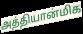
அத்தியான்மிக